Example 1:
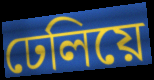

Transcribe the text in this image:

ঢেলিয়ে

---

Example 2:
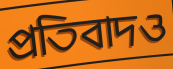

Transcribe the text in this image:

প্রতিবাদও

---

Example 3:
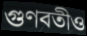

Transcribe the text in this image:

গুণবতীও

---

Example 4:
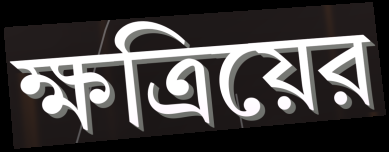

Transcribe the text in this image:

ক্ষত্রিয়ের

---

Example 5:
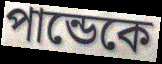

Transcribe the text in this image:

পান্ডেকে